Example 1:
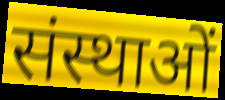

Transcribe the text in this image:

संस्थाओं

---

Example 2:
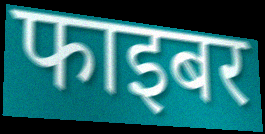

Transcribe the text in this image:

फाइबर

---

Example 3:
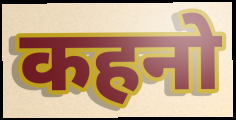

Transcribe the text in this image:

कहनो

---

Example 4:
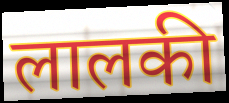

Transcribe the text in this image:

लालकी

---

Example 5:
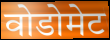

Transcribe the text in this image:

वोडोमेट